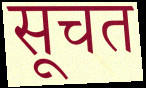
सूचत